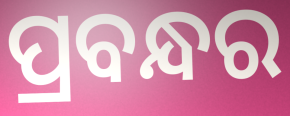
ପ୍ରବନ୍ଧର